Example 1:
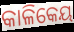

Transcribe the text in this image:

କାଳିକେୟ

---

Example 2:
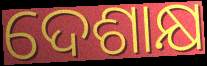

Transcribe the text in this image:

ଦେଶାକ୍ଷ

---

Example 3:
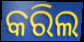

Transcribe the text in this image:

କରିଲ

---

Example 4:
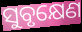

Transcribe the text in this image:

ସୁବୃକ୍ଷେଣ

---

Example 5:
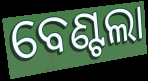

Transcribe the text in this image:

ବେଣ୍ଟଲା